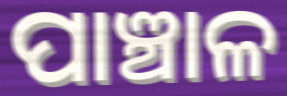
ପାଞ୍ଚାଳ